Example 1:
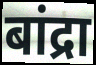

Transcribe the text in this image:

बांद्रा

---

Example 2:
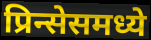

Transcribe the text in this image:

प्रिन्सेसमध्ये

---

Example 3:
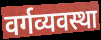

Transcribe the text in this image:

वर्गव्यवस्था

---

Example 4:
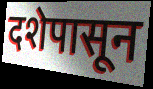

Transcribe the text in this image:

दशेपासून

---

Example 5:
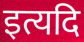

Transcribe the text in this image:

इत्यदि